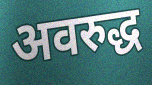
अवरुद्ध